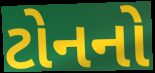
ટોનનો